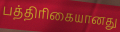
பத்திரிகையானது